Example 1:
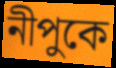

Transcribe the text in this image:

নীপুকে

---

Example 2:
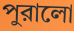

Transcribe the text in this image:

পুরালো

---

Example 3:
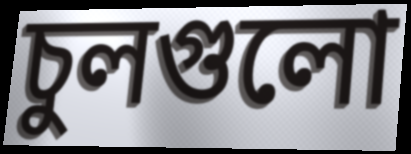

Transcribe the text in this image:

চুলগুলো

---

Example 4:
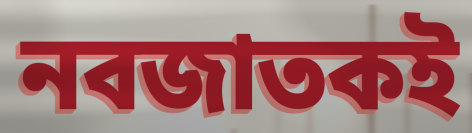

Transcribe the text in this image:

নবজাতকই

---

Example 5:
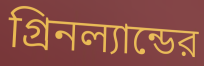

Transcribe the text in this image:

গ্রিনল্যান্ডের